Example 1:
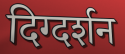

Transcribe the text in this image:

दिग्दर्शन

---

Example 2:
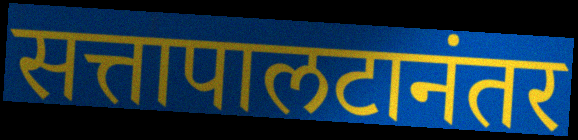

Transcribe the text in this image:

सत्तापालटानंतर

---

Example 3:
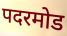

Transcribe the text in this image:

पदरमोड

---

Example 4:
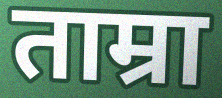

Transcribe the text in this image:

ताम्रा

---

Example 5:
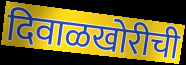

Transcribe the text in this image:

दिवाळखोरीची